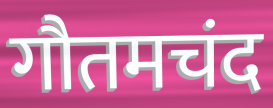
गौतमचंद